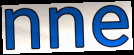
nne